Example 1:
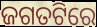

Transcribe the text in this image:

ଜଗତଟିରେ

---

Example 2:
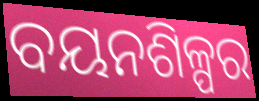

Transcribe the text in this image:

ବୟନଶିଳ୍ପର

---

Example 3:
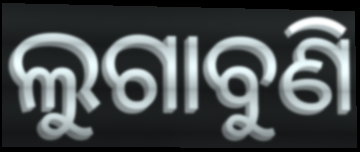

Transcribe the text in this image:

ଲୁଗାବୁଣି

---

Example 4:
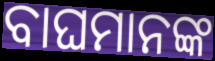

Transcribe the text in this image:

ବାଘମାନଙ୍କ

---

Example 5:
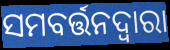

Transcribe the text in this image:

ସମବର୍ତ୍ତନଦ୍ୱାରା